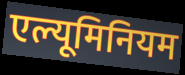
एल्यूमिनियम